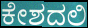
ಕೇಶದಲಿ